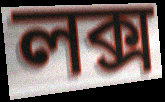
লক্স